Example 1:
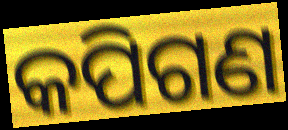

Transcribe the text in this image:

କପିଗଣ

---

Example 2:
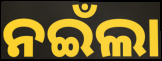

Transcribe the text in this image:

ନଇଁଲା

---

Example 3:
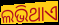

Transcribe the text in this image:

ଲଭିଥାଏ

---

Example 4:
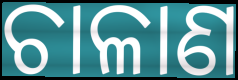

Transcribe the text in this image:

ଚାଳାଣ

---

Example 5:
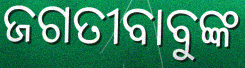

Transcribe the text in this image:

ଜଗତୀବାବୁଙ୍କ